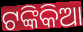
ଟଙ୍କିକିଆ